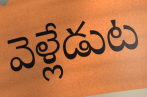
వెళ్లేడుట